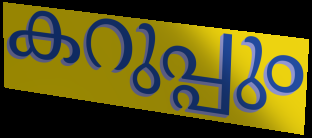
കറുപ്പും